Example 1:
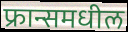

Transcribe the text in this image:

फ्रान्समधील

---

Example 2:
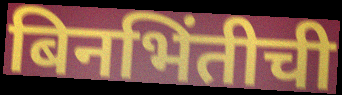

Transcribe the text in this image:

बिनभिंतीची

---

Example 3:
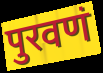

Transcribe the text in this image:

पुरवणं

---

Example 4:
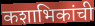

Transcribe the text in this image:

कशाभिकांची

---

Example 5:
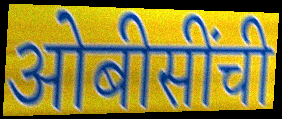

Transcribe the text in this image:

ओबीसींची